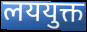
लययुक्त